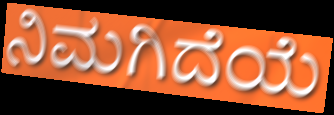
ನಿಮಗಿದೆಯೆ